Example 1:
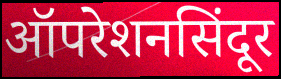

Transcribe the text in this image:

ऑपरेशनसिंदूर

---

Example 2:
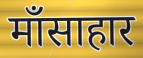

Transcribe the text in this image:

माँसाहार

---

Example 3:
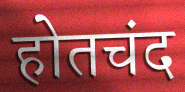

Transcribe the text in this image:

होतचंद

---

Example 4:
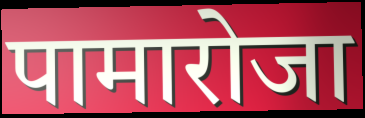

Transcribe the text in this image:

पामारोजा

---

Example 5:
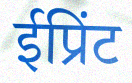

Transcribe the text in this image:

ईप्रिंट